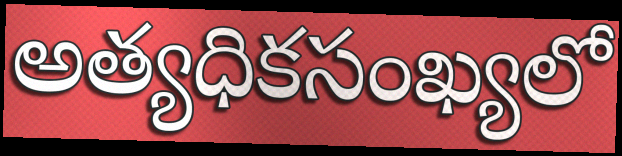
అత్యధికసంఖ్యలో